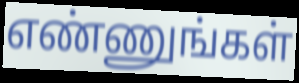
எண்ணுங்கள்